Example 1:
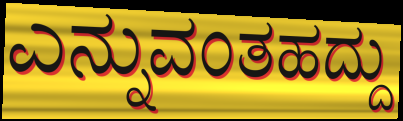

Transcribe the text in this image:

ಎನ್ನುವಂತಹದ್ದು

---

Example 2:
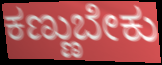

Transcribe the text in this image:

ಕಣ್ಣುಬೇಕು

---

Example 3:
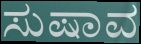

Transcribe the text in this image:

ಸುಷಾವ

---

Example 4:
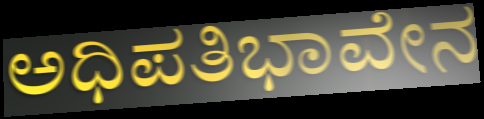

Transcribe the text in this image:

ಅಧಿಪತಿಭಾವೇನ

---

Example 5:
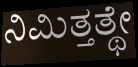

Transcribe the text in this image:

ನಿಮಿತ್ತತ್ಥೇ